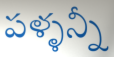
పళ్ళన్నీ